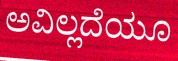
ಅವಿಲ್ಲದೆಯೂ